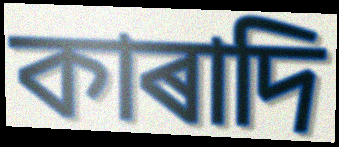
কাৰাদি